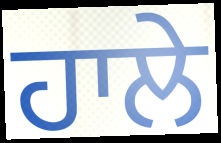
ਹਾਲੇ